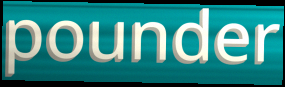
pounder